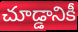
చూడ్డానికీ